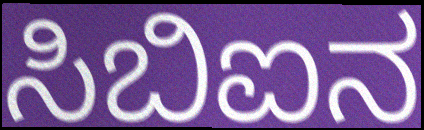
ಸಿಬಿಐನ